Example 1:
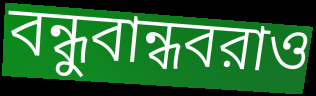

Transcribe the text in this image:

বন্ধুবান্ধবরাও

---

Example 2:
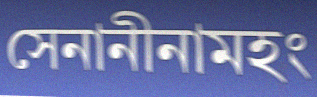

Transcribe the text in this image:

সেনানীনামহং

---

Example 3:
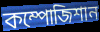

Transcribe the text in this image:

কম্পোজিশান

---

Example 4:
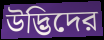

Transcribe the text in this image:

উদ্ভিদের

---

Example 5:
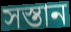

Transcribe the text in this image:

সস্তান